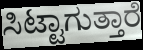
ಸಿಟ್ಟಾಗುತ್ತಾರೆ